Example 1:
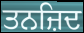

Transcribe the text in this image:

ਤਨਜ਼ਿਦ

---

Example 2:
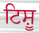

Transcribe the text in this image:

ਟਿਸ਼ੂ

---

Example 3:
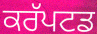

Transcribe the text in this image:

ਕਰੱਪਟਡ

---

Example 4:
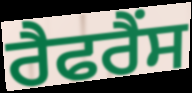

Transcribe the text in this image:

ਰੈਫਰੈਂਸ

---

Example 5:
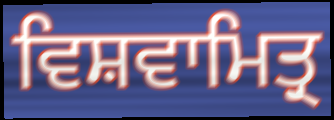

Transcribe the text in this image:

ਵਿਸ਼ਵਾਮਿਤ੍ਰ